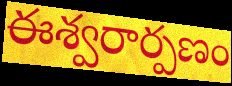
ఈశ్వరార్పణం